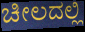
ಚೀಲದಲ್ಲಿ